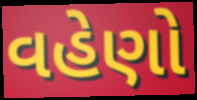
વહેણો